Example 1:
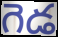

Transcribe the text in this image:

గెడ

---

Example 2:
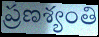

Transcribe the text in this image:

ప్రణశ్యంతి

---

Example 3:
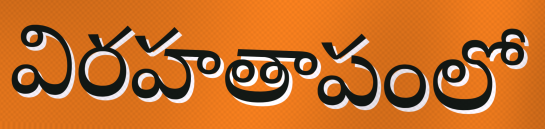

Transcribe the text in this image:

విరహతాపంలో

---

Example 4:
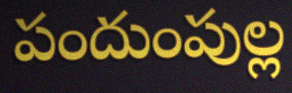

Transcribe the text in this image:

పందుంపుల్ల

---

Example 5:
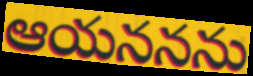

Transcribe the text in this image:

ఆయననను